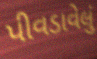
પીવડાવેલું